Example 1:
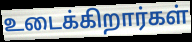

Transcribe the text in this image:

உடைக்கிறார்கள்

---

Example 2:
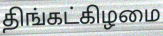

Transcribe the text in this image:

திங்கட்கிழமை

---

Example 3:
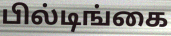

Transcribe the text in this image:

பில்டிங்கை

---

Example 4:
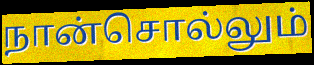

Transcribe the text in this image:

நான்சொல்லும்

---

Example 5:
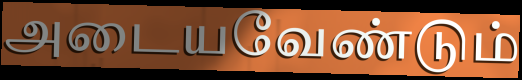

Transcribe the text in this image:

அடையவேண்டும்